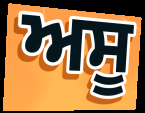
ਅਸੂ